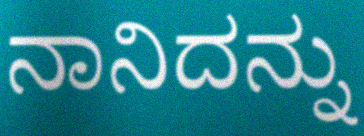
ನಾನಿದನ್ನು